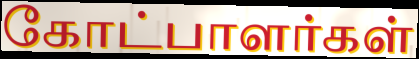
கோட்பாளர்கள்